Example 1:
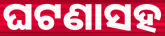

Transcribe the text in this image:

ଘଟଣାସହ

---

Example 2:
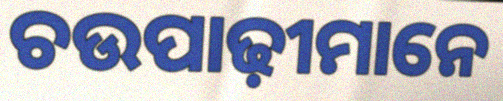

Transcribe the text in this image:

ଚଉପାଢ଼ୀମାନେ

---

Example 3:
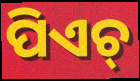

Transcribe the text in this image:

ପିଏଚ୍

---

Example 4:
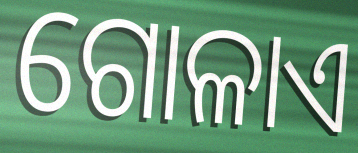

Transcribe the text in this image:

ଗୋଳାଏ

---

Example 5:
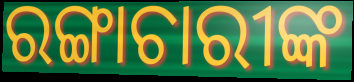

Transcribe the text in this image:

ରଙ୍ଗାଚାରୀଙ୍କ